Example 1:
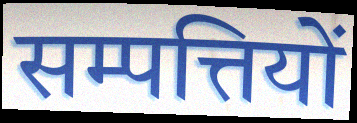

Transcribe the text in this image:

सम्‍पत्तियों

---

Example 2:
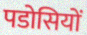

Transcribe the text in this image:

पडोसियों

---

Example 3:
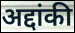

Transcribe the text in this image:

अद्दांकी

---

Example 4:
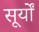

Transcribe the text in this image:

सूर्यों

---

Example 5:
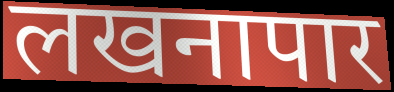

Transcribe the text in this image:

लखनापार